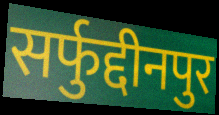
सर्फुद्दीनपुर